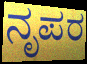
ನೃಪರ